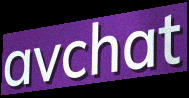
avchat